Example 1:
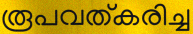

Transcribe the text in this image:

രൂപവത്കരിച്ച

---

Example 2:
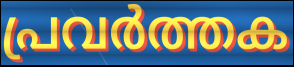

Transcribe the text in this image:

പ്രവർത്തക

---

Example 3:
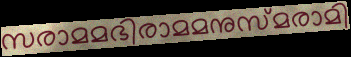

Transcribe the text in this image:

സരാമമഭിരാമമനുസ്മരാമി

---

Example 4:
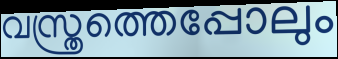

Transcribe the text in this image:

വസ്ത്രത്തെപ്പോലും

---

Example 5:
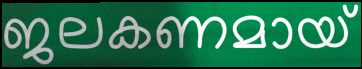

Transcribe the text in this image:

ജലകണമായ്